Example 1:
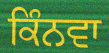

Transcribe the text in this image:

ਕਿੰਨਵਾ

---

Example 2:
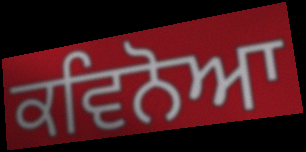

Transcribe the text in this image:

ਕਵਿਨੋਆ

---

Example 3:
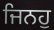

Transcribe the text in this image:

ਜਿਨਹੁ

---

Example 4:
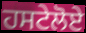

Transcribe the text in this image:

ਹਸਟੇਲੋਏ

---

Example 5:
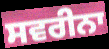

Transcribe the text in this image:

ਸਵਰੀਨਾ